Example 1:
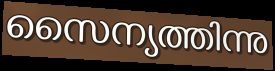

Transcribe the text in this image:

സൈന്യത്തിന്നു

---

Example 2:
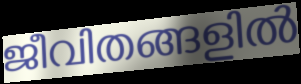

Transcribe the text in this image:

ജീവിതങ്ങളിൽ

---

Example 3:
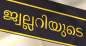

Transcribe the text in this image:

ജ്വല്ലറിയുടെ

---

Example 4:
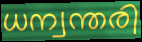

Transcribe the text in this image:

ധന്വന്തരി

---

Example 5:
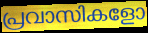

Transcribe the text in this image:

പ്രവാസികളോ